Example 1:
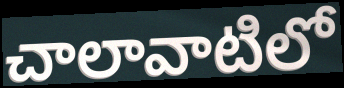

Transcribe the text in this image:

చాలావాటిలో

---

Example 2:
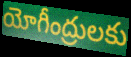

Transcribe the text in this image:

యోగీంద్రులకు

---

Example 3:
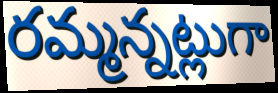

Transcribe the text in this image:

రమ్మన్నట్లుగా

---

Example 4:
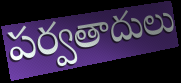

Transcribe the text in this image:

పర్వతాదులు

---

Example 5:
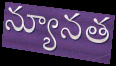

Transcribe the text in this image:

న్యూనత